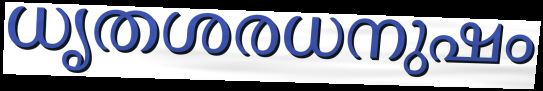
ധൃതശരധനുഷം